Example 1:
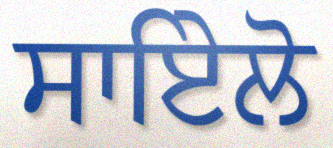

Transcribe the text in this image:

ਸਾਇੇਲੋ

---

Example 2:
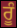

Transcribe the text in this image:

ਰੂੰ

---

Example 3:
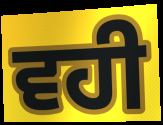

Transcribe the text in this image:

ਵਹੀ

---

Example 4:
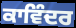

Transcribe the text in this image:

ਕਾਵਿੰਦਰ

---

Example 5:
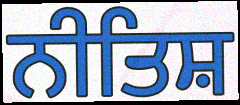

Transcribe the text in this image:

ਨੀਤਿਸ਼